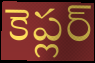
కెప్లర్